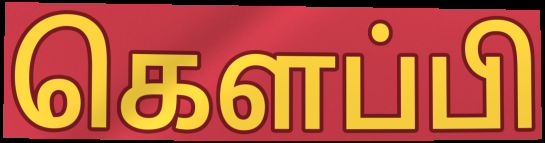
கெளப்பி